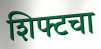
शिफ्टचा